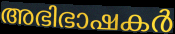
അഭിഭാഷകർ